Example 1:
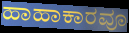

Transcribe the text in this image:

ಹಾಹಾಕಾರವೂ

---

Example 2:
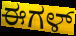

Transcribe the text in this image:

ಈಗಳ್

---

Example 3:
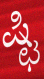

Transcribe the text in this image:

ಷ್ಟಿ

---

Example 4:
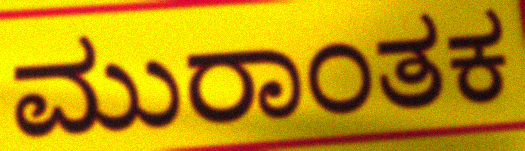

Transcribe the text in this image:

ಮುರಾಂತಕ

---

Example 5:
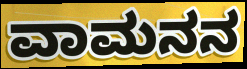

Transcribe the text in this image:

ವಾಮನನ